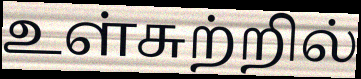
உள்சுற்றில்